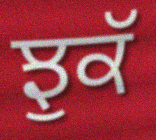
ਝੁਕੱ